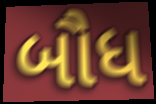
બૌધ